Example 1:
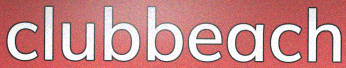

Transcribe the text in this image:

clubbeach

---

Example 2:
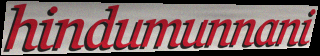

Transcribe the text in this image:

hindumunnani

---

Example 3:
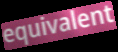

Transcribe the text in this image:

equivalent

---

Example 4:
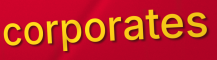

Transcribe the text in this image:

corporates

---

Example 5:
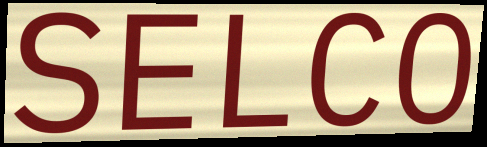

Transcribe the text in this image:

SELCO